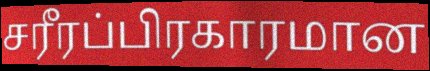
சரீரப்பிரகாரமான